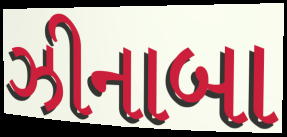
ઝીનાબા